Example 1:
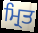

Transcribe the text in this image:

ਮ੍ਰਿਤ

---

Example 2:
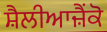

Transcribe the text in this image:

ਸ਼ੈਲੀਆਜ਼ੈਂਕੋ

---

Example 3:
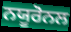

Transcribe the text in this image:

ਨਯੂਰੋਨਲ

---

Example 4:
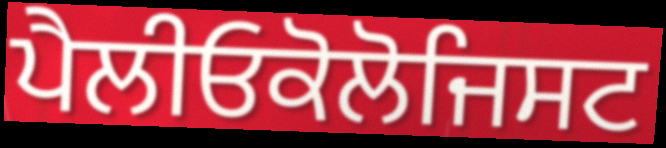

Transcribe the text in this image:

ਪੈਲੀਓਕੋਲੋਜਿਸਟ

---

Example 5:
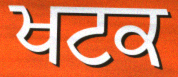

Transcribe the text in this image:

ਖਟਕ